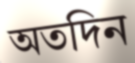
অতদিন